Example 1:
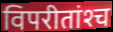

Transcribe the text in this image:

विपरीतांश्च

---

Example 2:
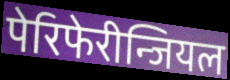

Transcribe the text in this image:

पेरिफेरीन्जियल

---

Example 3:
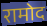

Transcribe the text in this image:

रामोद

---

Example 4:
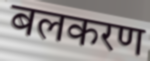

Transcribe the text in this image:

बलकरण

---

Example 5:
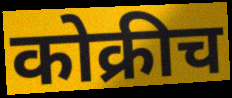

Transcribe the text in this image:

कोक्रीच